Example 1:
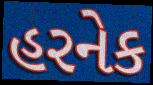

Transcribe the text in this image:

હરનેક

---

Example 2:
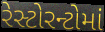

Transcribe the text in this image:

રેસ્ટોરન્ટોમાં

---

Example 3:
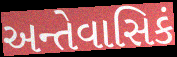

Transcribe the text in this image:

અન્તેવાસિકં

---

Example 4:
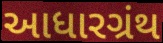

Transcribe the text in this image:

આધારગ્રંથ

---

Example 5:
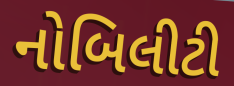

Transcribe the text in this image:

નોબિલીટી